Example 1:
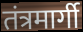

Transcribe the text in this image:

तंत्रमार्गी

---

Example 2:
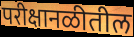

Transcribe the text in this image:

परीक्षानळीतील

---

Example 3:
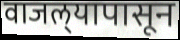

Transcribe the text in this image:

वाजल्यापासून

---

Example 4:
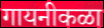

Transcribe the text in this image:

गायनीकळा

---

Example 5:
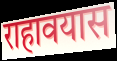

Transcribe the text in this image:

राहावयास